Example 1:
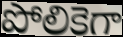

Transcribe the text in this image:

పోలికెగా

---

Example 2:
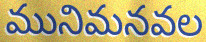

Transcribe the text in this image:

మునిమనవల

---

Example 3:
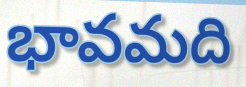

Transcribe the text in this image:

భావమది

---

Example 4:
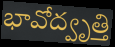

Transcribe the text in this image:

భావోద్వృత్తి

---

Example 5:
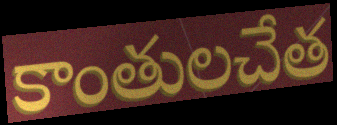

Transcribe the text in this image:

కాంతులచేత